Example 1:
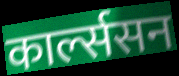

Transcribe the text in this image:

कार्ल्ससन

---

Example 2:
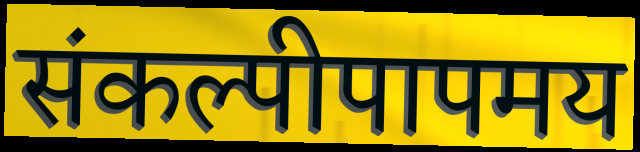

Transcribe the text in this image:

संकल्पीपापमय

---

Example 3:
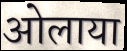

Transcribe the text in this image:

ओलाया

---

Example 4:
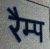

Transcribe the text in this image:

रैम्प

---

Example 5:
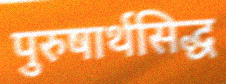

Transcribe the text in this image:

पुरुषार्थसिद्ध